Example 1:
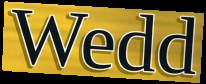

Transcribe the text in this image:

Wedd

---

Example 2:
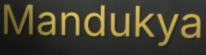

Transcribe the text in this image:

Mandukya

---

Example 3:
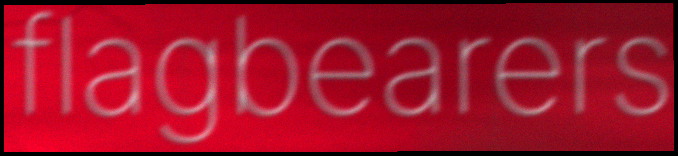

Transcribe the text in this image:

flagbearers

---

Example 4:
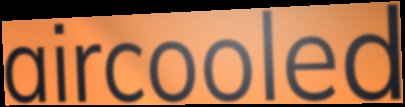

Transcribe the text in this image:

aircooled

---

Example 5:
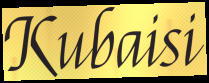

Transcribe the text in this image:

Kubaisi